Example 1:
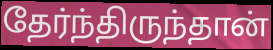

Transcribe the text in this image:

தேர்ந்திருந்தான்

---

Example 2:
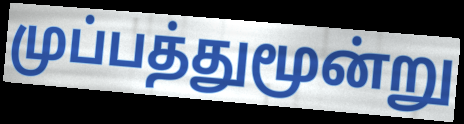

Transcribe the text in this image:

முப்பத்துமூன்று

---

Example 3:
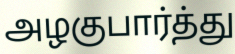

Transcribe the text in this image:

அழகுபார்த்து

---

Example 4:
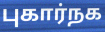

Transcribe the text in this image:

புகார்நக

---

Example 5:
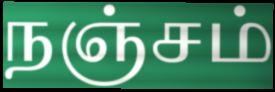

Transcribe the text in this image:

நஞ்சம்